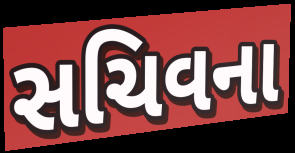
સચિવના